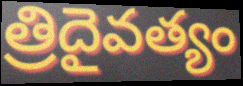
త్రిదైవత్యం